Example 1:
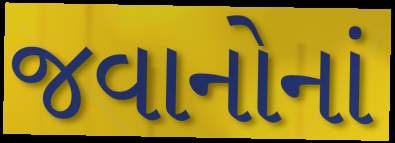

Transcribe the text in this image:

જવાનોનાં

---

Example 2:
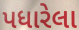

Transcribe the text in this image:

પધારેલા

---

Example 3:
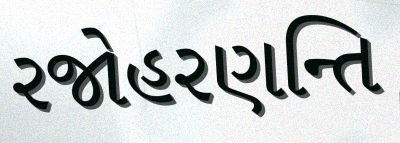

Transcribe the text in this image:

રજોહરણન્તિ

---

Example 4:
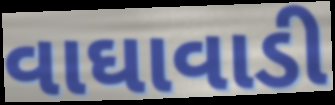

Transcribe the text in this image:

વાઘાવાડી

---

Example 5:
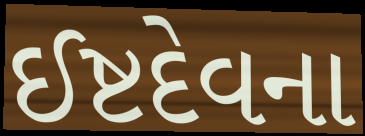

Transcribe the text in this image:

ઈષ્ટદેવના